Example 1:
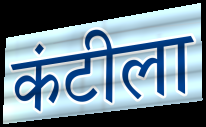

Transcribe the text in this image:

कंटीला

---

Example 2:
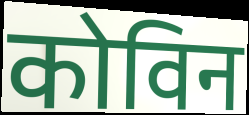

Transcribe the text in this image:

कोविन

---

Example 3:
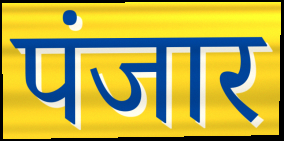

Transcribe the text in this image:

पंजार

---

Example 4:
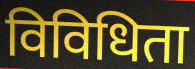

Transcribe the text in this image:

विविधिता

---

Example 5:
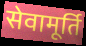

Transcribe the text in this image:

सेवामूर्ति